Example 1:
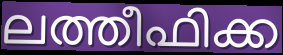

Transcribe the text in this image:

ലത്തീഫിക്ക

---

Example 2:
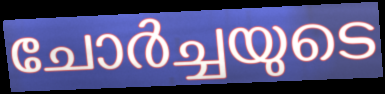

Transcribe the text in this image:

ചോർച്ചയുടെ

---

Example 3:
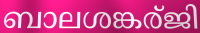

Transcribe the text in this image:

ബാലശങ്കര്ജി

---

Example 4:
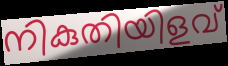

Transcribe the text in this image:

നികുതിയിളവ്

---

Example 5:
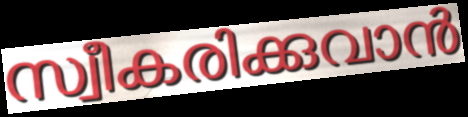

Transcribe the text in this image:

സ്വീകരിക്കുവാൻ